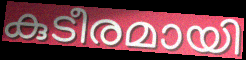
കുടീരമായി